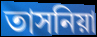
তাসনিয়া